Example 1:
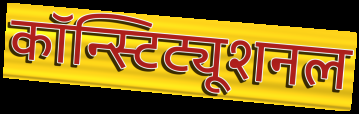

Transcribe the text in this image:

कॉन्स्टिट्यूशनल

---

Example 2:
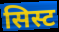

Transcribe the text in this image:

सिस्ट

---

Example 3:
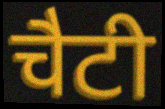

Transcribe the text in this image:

चैटी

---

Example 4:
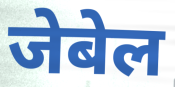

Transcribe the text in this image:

जेबेल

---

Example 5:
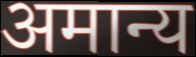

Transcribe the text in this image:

अमान्य